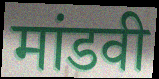
मांडवी